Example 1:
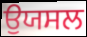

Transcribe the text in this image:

ਉਯਸਲ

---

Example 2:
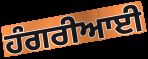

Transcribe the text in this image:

ਹੰਗਰੀਆਈ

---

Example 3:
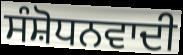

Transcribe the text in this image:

ਸੰਸ਼ੋਧਨਵਾਦੀ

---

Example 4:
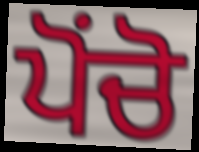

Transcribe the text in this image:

ਪੋਂਚੋ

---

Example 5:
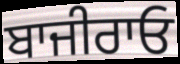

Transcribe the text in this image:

ਬਾਜੀਰਾਓ